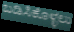
ಬಡಿಸಿಕೊಳ್ಳಲು